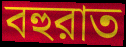
বহুরাত